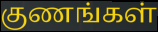
குணங்கள்